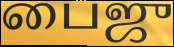
பைஜு